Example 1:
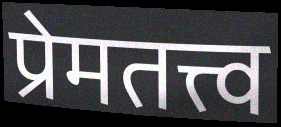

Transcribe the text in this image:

प्रेमतत्त्व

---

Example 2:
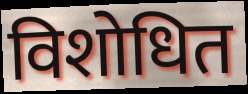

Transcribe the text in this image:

विशोधित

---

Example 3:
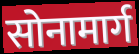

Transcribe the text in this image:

सोनामार्ग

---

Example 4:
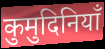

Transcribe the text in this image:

कुमुदिनियाँ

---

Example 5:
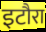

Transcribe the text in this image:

इटौरा